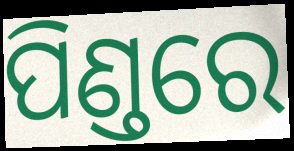
ପିଣ୍ଡରେ